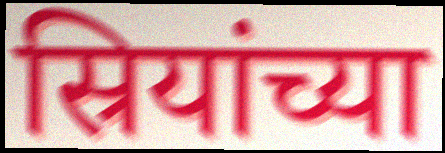
स्रियांच्या